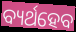
ବ୍ୟର୍ଥହେବ